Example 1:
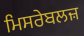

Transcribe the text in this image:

ਮਿਸਰੇਬਲਜ਼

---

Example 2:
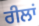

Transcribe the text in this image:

ਰੀਲਾਂ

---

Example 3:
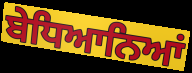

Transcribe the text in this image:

ਬੇਧਿਆਨਿਆਂ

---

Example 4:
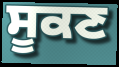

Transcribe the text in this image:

ਸੂਕਣ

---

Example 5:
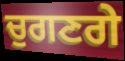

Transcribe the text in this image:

ਚੁਗਣਗੇ